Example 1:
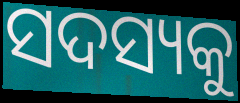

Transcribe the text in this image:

ସଦସ୍ୟକୁ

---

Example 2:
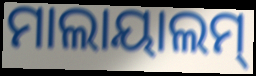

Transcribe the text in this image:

ମାଲାୟାଲମ୍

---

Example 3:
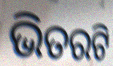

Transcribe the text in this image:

ଭିତରଟି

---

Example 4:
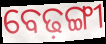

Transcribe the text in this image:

ବେଢ଼ଙ୍ଗୀ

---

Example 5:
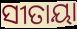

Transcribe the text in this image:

ସୀତାୟା